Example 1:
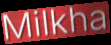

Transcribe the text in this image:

Milkha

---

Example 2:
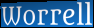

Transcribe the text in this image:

Worrell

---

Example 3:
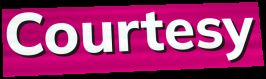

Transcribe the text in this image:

Courtesy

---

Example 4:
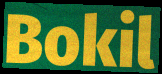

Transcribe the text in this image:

Bokil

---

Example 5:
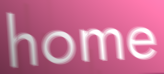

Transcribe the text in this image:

home